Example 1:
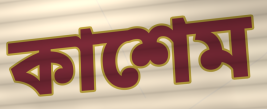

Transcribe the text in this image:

কাশেম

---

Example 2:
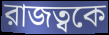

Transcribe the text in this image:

রাজত্বকে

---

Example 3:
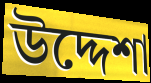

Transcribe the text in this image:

উদ্দেশা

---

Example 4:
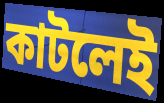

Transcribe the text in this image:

কাটলেই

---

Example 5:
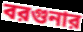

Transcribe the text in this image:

বরগুনার